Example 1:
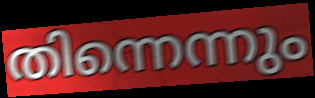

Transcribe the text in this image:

തിന്നെന്നും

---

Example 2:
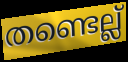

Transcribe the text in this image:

തണ്ടെല്ല്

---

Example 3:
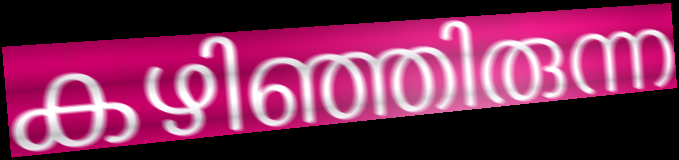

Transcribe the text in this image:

കഴിഞ്ഞിരുന്ന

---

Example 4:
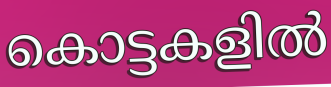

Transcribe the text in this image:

കൊട്ടകളിൽ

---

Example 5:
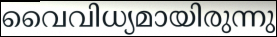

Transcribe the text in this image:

വൈവിധ്യമായിരുന്നു